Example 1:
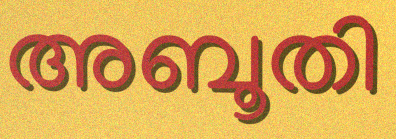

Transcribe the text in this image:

അബൂതി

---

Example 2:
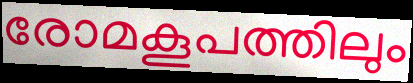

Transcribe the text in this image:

രോമകൂപത്തിലും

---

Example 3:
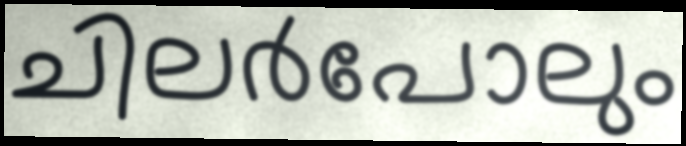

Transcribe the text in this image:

ചിലർപോലും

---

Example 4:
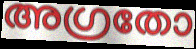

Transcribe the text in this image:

അഗ്രതോ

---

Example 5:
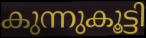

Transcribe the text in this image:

കുന്നുകൂട്ടി